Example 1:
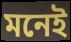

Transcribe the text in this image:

মনেই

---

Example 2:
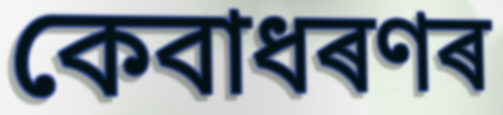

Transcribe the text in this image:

কেবাধৰণৰ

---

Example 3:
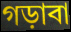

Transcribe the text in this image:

গড়াবা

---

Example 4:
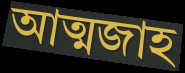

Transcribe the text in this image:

আত্মজাহ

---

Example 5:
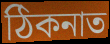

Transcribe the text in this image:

ঠিকনাত